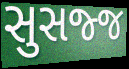
સુસજ્જ